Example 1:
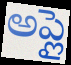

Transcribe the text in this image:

అప్లై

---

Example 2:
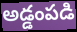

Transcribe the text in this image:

అడ్డంపడి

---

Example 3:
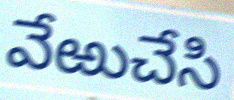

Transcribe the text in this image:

వేఱుచేసి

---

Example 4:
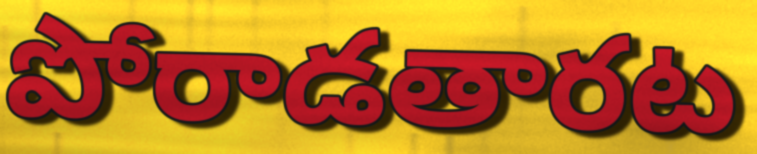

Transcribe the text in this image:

పోరాడతారట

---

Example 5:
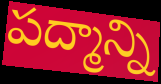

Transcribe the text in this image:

పద్మాన్ని